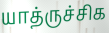
யாத்ருச்சிக